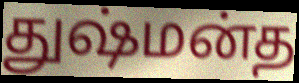
துஷ்மன்த